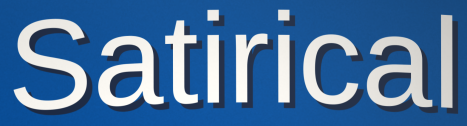
Satirical